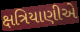
ક્ષત્રિયાણીએ